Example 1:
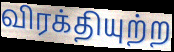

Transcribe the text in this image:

விரக்தியுற்ற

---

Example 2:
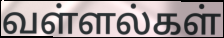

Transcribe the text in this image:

வள்ளல்கள்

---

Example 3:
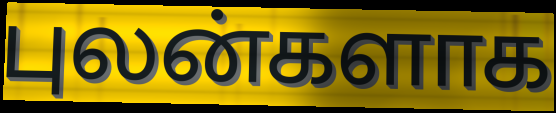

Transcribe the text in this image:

புலன்களாக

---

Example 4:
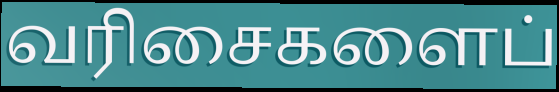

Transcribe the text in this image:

வரிசைகளைப்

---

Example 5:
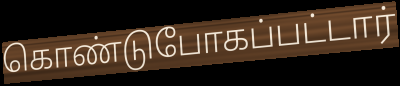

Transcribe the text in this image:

கொண்டுபோகப்பட்டார்